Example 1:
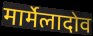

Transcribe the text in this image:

मार्मेलादोव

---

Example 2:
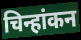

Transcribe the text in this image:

चिन्हांकन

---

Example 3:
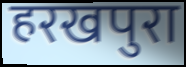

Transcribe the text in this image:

हरखपुरा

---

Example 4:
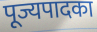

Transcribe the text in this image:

पूज्यपादका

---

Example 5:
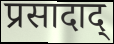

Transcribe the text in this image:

प्रसादाद्